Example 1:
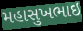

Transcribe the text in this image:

મહાસુખભાઇ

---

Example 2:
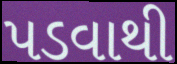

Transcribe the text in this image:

પડવાથી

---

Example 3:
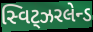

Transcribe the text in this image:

સ્વિટ્ઝરલેન્ડ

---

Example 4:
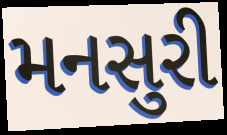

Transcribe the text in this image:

મનસુરી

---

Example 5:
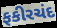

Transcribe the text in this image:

ફકીરચંદ